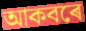
আকবৰে